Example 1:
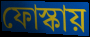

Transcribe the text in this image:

ফোস্কায়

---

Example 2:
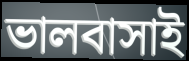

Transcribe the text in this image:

ভালবাসাই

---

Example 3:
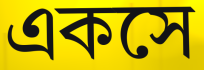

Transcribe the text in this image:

একসে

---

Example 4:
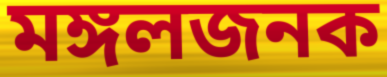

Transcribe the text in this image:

মঙ্গলজনক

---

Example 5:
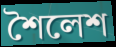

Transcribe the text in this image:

শৈলেশ